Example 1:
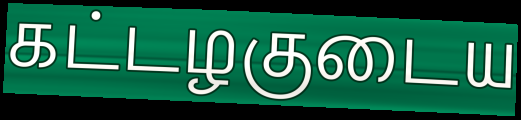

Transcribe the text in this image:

கட்டழகுடைய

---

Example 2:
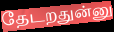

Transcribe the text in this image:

தேடறதுன்னு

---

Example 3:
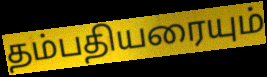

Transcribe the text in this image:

தம்பதியரையும்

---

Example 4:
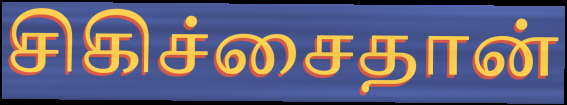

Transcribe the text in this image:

சிகிச்சைதான்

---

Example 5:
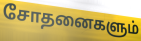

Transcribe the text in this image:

சோதனைகளும்